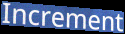
Increment